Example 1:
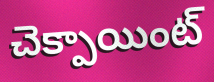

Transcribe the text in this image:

చెక్పాయింట్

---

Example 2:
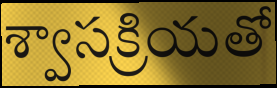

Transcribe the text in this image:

శ్వాసక్రియతో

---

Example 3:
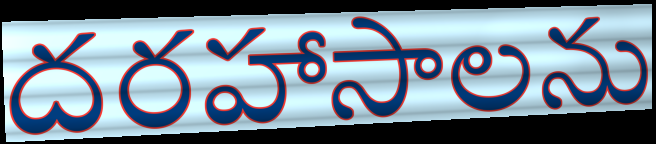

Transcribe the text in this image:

దరహాసాలను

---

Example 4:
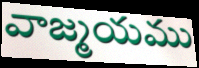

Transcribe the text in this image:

వాజ్మయము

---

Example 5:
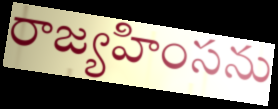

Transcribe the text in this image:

రాజ్యహింసను